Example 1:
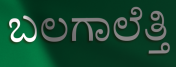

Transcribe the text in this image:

ಬಲಗಾಲೆತ್ತಿ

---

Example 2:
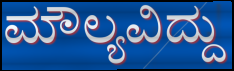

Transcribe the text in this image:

ಮೌಲ್ಯವಿದ್ದು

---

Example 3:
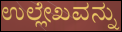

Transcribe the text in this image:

ಉಲ್ಲೇಖವನ್ನು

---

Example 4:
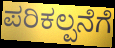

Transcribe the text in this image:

ಪರಿಕಲ್ಪನೆಗೆ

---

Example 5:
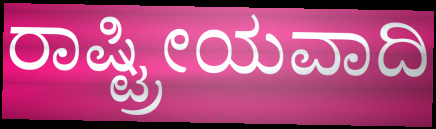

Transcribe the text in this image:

ರಾಷ್ಟ್ರೀಯವಾದಿ